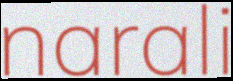
narali